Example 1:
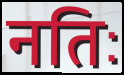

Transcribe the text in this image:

नतिः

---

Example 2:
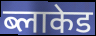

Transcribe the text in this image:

ब्लाकेड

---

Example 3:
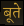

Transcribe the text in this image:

बूते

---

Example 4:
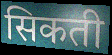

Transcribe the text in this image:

सिकती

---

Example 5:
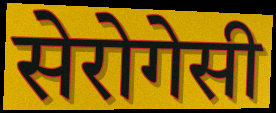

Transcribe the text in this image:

सेरोगेसी